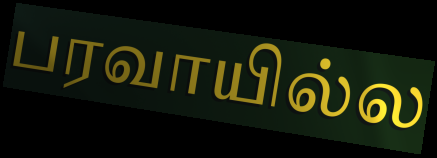
பரவாயில்ல